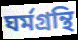
ঘর্মগ্রন্থি